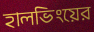
হালভিংয়ের